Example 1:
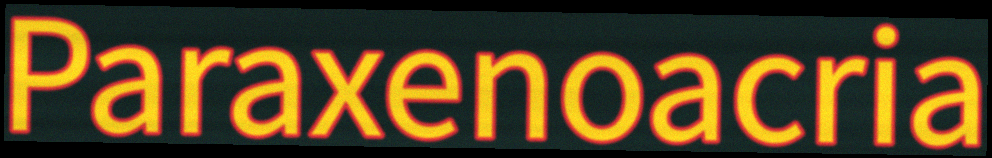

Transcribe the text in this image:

Paraxenoacria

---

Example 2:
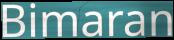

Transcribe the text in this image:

Bimaran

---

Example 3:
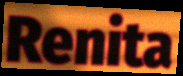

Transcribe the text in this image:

Renita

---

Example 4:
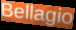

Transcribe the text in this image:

Bellagio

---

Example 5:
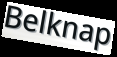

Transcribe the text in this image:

Belknap